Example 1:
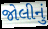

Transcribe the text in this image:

જોલીનું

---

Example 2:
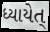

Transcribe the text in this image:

ધ્યાયેત્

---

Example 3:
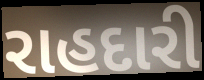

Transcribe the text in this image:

રાહદારી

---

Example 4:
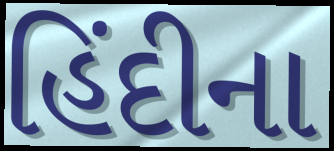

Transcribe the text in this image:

હિંદીના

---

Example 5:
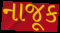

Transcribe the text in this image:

નાજૂક